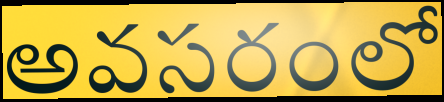
అవసరంలో